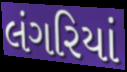
લંગરિયાં